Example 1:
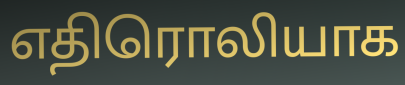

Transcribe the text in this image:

எதிரொலியாக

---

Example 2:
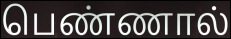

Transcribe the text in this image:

பெண்ணால்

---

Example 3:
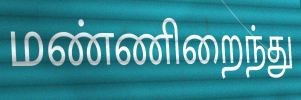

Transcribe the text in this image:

மண்ணிறைந்து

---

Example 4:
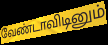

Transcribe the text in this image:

வேண்டாவிடினும்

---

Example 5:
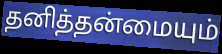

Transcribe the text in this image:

தனித்தன்மையும்